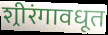
श्रीरंगावधूत